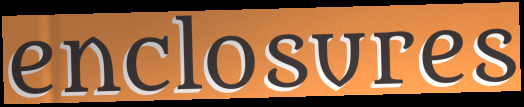
enclosures